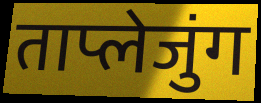
ताप्लेजुंग